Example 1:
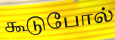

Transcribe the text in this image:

கூடுபோல்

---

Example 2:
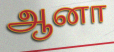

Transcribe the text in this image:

ஆனா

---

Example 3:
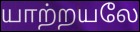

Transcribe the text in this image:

யாற்றயலே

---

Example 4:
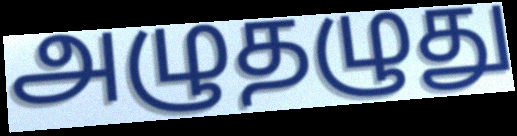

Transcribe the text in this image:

அழுதழுது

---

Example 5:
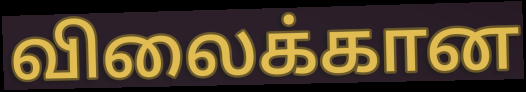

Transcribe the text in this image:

விலைக்கான